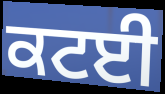
ਕਟਈ